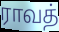
ராவத்